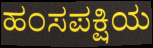
ಹಂಸಪಕ್ಷಿಯ